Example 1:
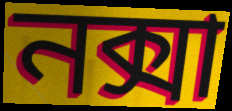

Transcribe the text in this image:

নক্সা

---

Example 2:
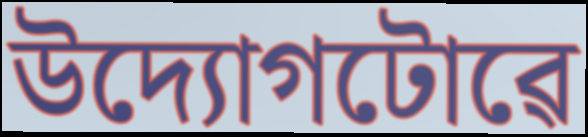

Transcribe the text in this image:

উদ্যোগটোৱে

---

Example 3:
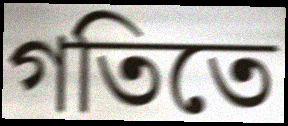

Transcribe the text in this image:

গতিতে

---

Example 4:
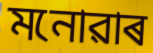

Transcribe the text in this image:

মনোৱাৰ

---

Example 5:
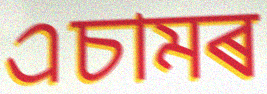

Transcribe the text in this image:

এচামৰ